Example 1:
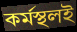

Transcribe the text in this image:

কর্মস্থলই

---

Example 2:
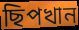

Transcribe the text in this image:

ছিপখান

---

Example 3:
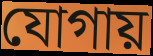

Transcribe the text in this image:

যোগায়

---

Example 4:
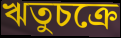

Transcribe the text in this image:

ঋতুচক্রে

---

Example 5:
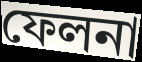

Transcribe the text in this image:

ফেলনা